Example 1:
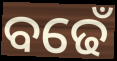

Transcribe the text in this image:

ବଢେଁ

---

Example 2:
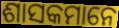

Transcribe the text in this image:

ଶାସକମାନେ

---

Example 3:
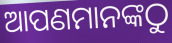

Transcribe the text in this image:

ଆପଣମାନଙ୍କଠୁ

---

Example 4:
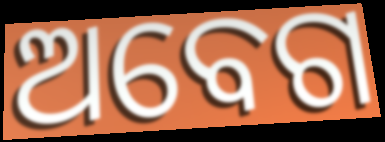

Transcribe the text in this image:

ଅବେଗ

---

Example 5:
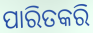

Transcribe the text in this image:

ପାରିତକରି